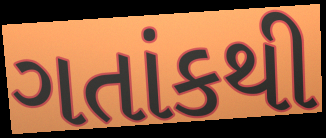
ગતાંકથી